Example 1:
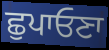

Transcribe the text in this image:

ਛੁਪਾਓਣਾ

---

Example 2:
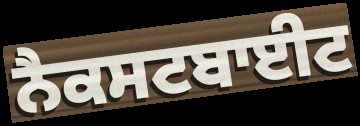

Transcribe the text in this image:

ਨੈਕਸਟਬਾਈਟ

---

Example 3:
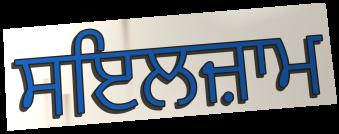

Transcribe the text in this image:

ਸਇਲਜ਼ਾਮ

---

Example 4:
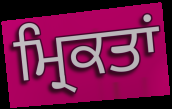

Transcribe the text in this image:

ਮ੍ਰਿਕਤਾਂ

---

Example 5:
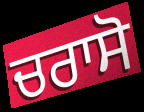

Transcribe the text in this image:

ਚਰਾਸੋ